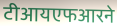
टीआयएफआरने